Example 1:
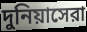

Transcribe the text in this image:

দুনিয়াসেরা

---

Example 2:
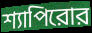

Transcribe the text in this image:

শ্যাপিরোর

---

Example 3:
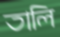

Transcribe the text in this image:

তালি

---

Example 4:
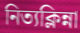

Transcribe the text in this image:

নিত্যক্লিন্না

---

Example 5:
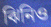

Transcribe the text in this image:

ঝিনিও